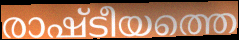
രാഷ്ടീയത്തെ